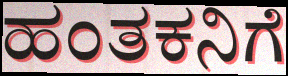
ಹಂತಕನಿಗೆ